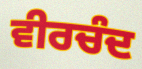
ਵੀਰਚੰਦ